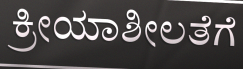
ಕ್ರೀಯಾಶೀಲತೆಗೆ